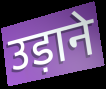
उड़ाने